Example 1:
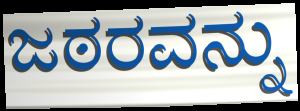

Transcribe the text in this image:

ಜಠರವನ್ನು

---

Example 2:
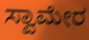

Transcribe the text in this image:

ಸ್ವಾಮೇರ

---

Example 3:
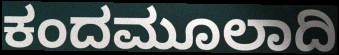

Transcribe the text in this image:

ಕಂದಮೂಲಾದಿ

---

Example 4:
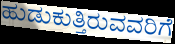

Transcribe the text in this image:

ಹುಡುಕುತ್ತಿರುವವರಿಗೆ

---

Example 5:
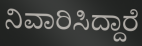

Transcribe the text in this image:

ನಿವಾರಿಸಿದ್ದಾರೆ